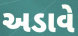
અડાવે